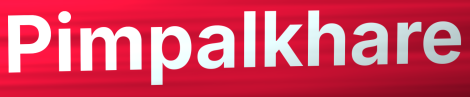
Pimpalkhare